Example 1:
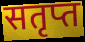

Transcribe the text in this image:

सतृप्त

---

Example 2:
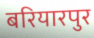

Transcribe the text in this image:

बरियारपुर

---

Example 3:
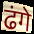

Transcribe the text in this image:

ढंगे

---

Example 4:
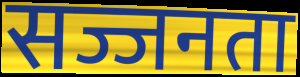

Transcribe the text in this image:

सज्जनता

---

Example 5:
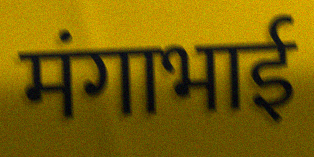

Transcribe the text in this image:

मंगाभाई